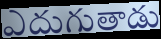
ఎదుగుతాడు